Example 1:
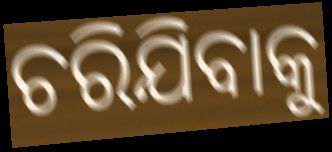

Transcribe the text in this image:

ଚରିଯିବାକୁ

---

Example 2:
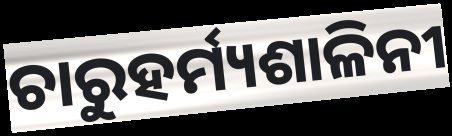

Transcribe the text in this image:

ଚାରୁହର୍ମ୍ୟଶାଳିନୀ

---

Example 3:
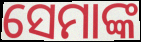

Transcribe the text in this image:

ସେମାଙ୍କ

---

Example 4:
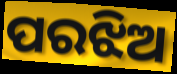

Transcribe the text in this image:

ପରଝିଅ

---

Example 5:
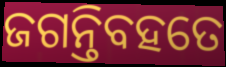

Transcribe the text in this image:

ଜଗନ୍ତିବହତେ